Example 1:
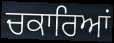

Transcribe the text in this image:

ਚਕਾਰਿਆਂ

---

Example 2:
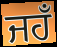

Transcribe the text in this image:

ਜਹਁ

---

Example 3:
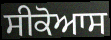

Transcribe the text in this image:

ਸੀਕੋਆਸ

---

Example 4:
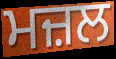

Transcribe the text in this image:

ਮਜ਼ਲ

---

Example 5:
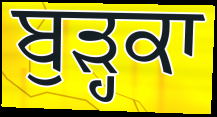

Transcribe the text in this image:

ਬੁੜ੍ਹਕਾ